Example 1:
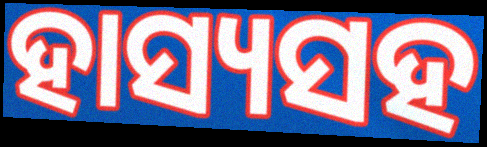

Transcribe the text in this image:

ହାସ୍ୟସହ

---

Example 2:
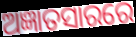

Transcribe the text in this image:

ଅଜ୍ଞାତସାରରେ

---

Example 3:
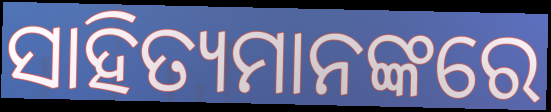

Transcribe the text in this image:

ସାହିତ୍ୟମାନଙ୍କରେ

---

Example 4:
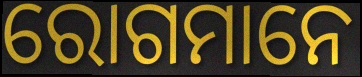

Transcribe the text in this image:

ରୋଗମାନେ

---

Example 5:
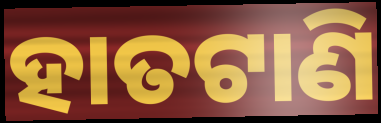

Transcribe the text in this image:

ହାତଟାଣି